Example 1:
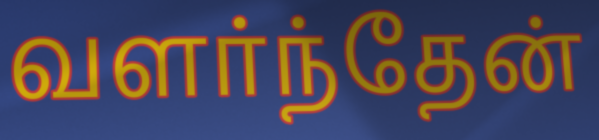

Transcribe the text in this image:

வளர்ந்தேன்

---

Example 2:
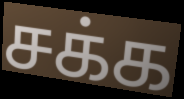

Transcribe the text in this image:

சக்க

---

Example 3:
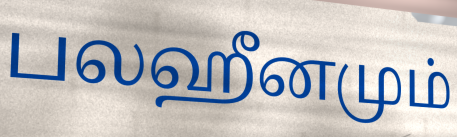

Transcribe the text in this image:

பலஹீனமும்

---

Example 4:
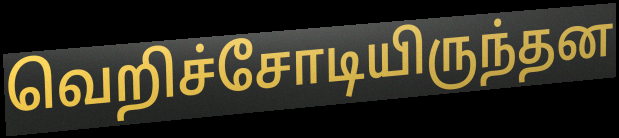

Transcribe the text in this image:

வெறிச்சோடியிருந்தன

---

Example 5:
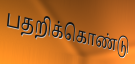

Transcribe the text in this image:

பதறிக்கொண்டு